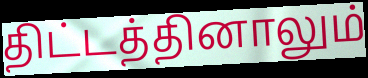
திட்டத்தினாலும்